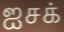
ஐசக்